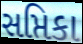
સપ્તિકા